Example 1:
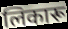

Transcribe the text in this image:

लिकारू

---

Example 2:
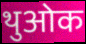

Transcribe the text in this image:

थुओक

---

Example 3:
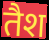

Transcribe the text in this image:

तैश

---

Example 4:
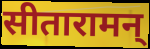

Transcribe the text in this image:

सीतारामन्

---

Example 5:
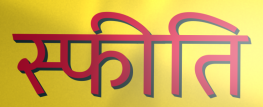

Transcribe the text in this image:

स्फीति